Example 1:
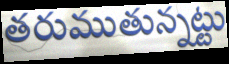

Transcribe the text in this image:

తరుముతున్నట్టు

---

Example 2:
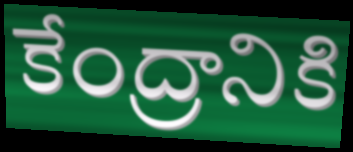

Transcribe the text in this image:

కేంద్రానికి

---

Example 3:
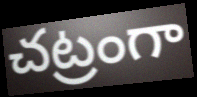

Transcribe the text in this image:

చట్రంగా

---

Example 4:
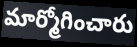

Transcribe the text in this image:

మార్మోగించారు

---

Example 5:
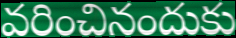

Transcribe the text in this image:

వరించినందుకు